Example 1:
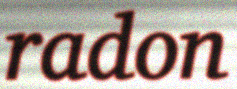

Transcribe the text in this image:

radon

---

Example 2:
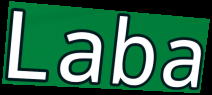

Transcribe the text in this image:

Laba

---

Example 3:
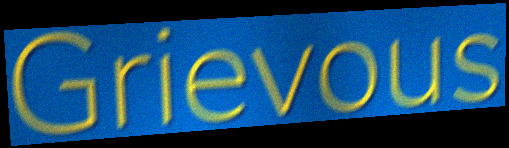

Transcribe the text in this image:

Grievous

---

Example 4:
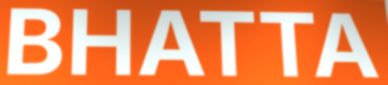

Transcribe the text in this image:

BHATTA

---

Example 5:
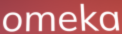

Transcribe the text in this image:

omeka